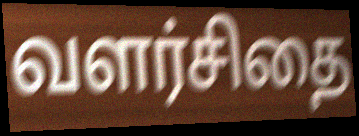
வளர்சிதை